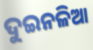
ଦୁଇନଳିଆ